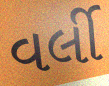
વર્લી